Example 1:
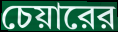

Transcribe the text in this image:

চেয়ারের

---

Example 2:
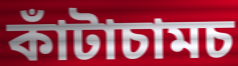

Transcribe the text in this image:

কাঁটাচামচ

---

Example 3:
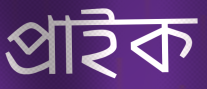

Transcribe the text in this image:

প্রাইক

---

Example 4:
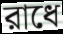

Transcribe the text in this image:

রাধে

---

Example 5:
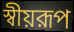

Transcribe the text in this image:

স্বীয়রূপ